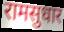
रामसुधार